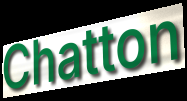
Chatton